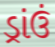
ડ્રાંઉં